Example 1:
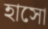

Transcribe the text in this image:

হাসো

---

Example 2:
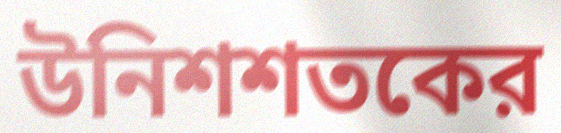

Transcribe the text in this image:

উনিশশতকের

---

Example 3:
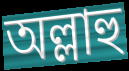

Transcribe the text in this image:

অল্লাহু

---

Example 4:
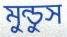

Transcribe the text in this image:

মুন্ডুস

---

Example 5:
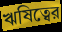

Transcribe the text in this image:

ঋষিত্বের